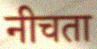
नीचता